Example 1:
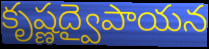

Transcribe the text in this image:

కృష్ణద్వైపాయన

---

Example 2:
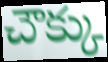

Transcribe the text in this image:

చౌక్కు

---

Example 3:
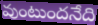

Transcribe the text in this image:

వుంటుందనేది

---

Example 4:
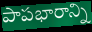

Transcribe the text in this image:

పాపభారాన్ని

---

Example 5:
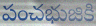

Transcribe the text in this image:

పంచభుజికి